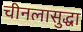
चीनलासुद्धा